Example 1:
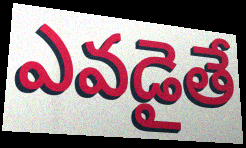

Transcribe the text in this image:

ఎవడైతే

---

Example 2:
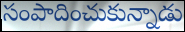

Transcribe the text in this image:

సంపాదించుకున్నాడు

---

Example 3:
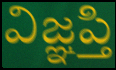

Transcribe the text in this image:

విజ్ఞప్తి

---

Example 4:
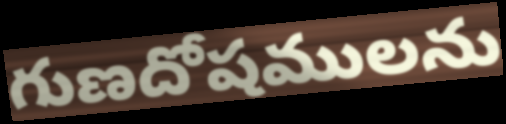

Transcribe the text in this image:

గుణదోషములను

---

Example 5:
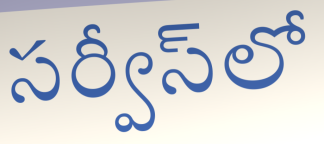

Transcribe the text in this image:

సర్వీస్‌లో